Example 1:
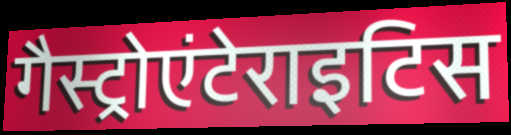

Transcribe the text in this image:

गैस्ट्रोएंटेराइटिस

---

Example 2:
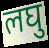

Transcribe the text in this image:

लघु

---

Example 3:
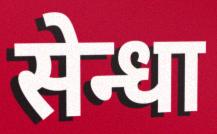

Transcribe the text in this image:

सेन्धा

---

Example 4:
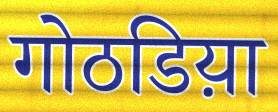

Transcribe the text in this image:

गोठडिय़ा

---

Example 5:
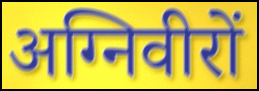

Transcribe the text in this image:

अग्निवीरों